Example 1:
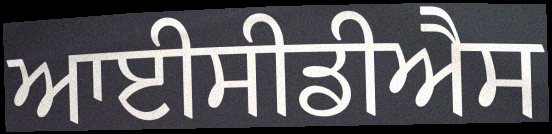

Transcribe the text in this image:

ਆਈਸੀਡੀਐਸ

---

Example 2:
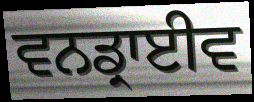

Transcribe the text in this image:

ਵਨਡ੍ਰਾਈਵ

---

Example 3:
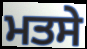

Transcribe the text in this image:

ਮਤਸੇ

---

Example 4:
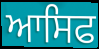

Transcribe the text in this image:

ਆਸਿਫ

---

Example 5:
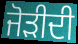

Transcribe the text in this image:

ਜੋੜੀਦੀ